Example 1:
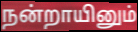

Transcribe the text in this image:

நன்றாயினும்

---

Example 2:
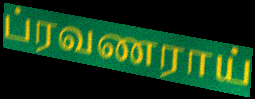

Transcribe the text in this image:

ப்ரவணராய்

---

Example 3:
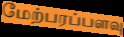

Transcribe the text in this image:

மேற்பரப்பளவு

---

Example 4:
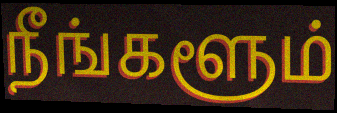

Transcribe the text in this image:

நீங்களூம்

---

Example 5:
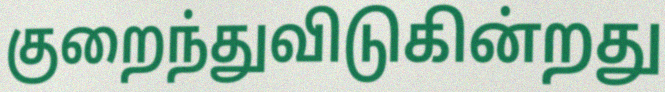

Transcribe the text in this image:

குறைந்துவிடுகின்றது